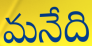
మనేది